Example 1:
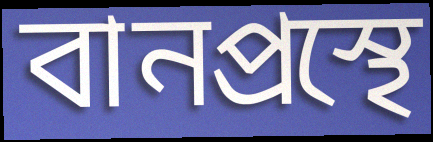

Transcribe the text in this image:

বানপ্রস্থে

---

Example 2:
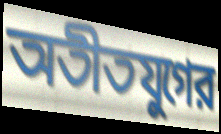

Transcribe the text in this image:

অতীতযুগের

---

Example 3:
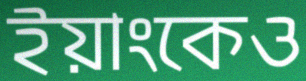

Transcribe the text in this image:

ইয়াংকেও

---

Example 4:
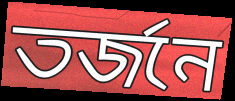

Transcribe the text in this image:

তর্জনে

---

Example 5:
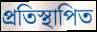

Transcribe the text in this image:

প্রতিস্থাপিত